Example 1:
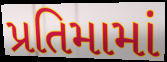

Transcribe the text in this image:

પ્રતિમામાં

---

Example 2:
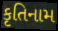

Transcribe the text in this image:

કૃતિનામ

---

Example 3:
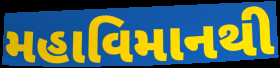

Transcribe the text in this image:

મહાવિમાનથી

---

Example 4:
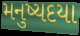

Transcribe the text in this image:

મનુષ્યદયા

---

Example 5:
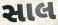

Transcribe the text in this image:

સાલ